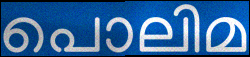
പൊലിമ